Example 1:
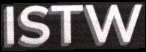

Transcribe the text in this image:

ISTW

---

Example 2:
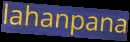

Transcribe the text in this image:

lahanpana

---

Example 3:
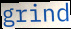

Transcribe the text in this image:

grind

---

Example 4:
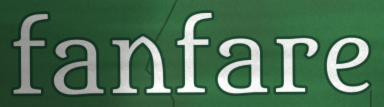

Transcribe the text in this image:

fanfare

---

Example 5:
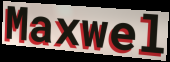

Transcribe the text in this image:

Maxwel